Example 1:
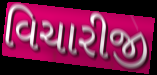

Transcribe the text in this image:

વિચારીજી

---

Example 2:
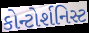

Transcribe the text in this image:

કોન્ટોર્શનિસ્ટ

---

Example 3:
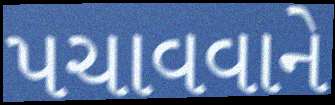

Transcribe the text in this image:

પચાવવાને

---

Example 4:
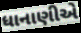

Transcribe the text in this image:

ધાનાણીએ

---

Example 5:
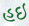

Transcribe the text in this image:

હઇ